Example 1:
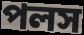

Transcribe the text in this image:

পলস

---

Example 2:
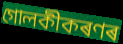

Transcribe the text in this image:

গোলকীকৰণৰ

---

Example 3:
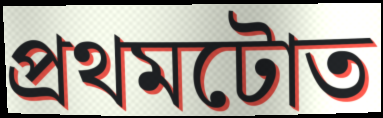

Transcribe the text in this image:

প্ৰথমটোত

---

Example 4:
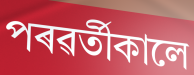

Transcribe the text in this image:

পৰৱৰ্তীকালে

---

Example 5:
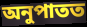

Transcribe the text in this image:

অনুপাতত